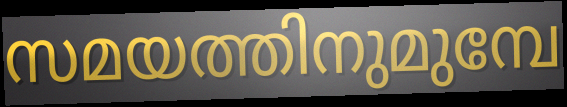
സമയത്തിനുമുമ്പേ